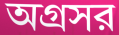
অগ্রসর